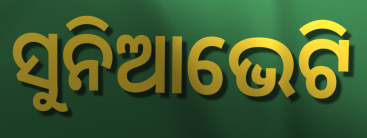
ସୁନିଆଭେଟି